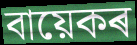
বায়েকৰ